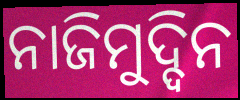
ନାଜିମୁଦ୍ଦିନ